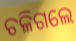
ଚଳିଗଲେ